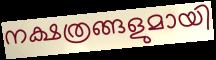
നക്ഷത്രങ്ങളുമായി